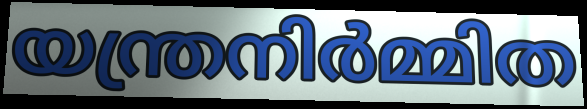
യന്ത്രനിർമ്മിത